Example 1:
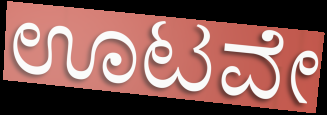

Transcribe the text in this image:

ಊಟವೇ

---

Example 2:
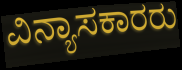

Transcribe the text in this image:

ವಿನ್ಯಾಸಕಾರರು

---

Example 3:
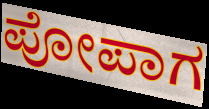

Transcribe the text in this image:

ಪೋಪಾಗ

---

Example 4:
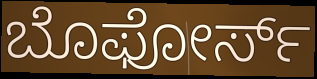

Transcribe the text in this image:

ಬೊಫೋರ್ಸ್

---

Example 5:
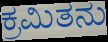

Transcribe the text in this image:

ಕ್ರಮಿತನು